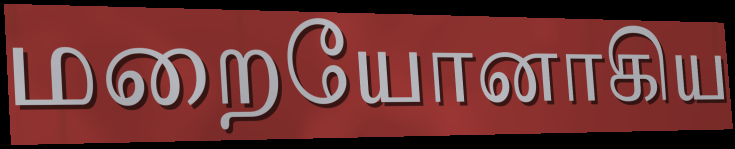
மறையோனாகிய